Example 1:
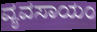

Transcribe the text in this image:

ವ್ಯವಸಾಯಂ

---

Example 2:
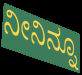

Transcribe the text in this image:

ನೀನಿನ್ನೂ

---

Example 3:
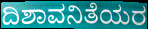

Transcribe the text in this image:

ದಿಶಾವನಿತೆಯರ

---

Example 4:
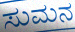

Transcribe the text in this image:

ಸುಮನ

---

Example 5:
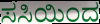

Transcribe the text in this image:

ಸಸಿಯಿಂದ